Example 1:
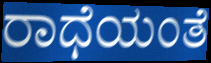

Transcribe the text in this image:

ರಾಧೆಯಂತೆ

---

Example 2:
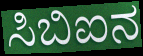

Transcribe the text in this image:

ಸಿಬಿಐನ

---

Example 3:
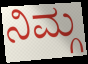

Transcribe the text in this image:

ನಿಮ್ಗ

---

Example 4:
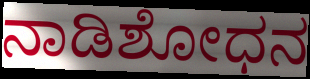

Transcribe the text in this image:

ನಾಡಿಶೋಧನ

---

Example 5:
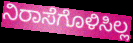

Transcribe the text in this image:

ನಿರಾಸೆಗೊಳಿಸಿಲ್ಲ